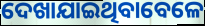
ଦେଖାଯାଇଥିବାବେଳେ